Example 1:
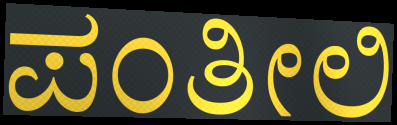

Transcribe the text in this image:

ಪಂತೀಲಿ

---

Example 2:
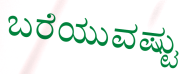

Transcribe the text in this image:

ಬರೆಯುವಷ್ಟು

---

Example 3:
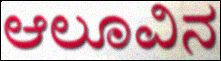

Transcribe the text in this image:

ಆಲೂವಿನ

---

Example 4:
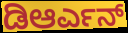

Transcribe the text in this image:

ಡಿಆರ್ಎನ್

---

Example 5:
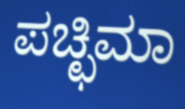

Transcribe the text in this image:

ಪಚ್ಛಿಮಾ